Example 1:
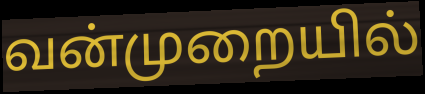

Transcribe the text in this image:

வன்முறையில்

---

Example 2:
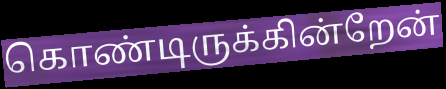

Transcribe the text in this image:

கொண்டிருக்கின்றேன்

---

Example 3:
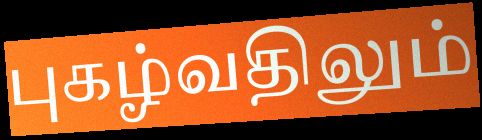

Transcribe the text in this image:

புகழ்வதிலும்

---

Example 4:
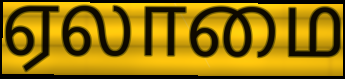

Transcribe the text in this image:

ஏலாமை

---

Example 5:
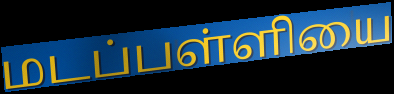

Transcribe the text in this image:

மடப்பள்ளியை